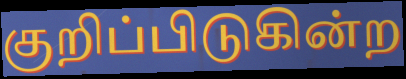
குறிப்பிடுகின்ற